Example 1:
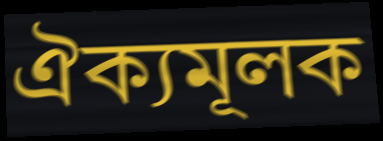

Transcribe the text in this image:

ঐক্যমূলক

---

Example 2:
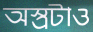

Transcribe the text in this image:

অস্ত্রটাও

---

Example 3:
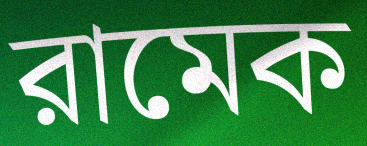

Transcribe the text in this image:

রামেক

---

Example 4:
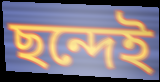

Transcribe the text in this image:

ছন্দেই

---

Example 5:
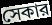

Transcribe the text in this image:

সেকার